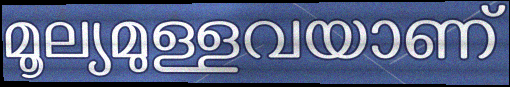
മൂല്യമുള്ളവയാണ്